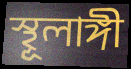
স্থূলাঙ্গী